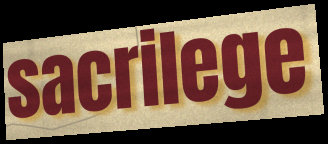
sacrilege